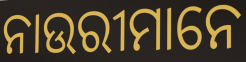
ନାଉରୀମାନେ